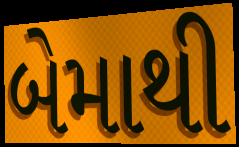
બેમાથી